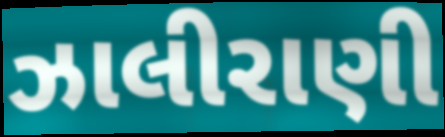
ઝાલીરાણી